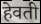
हेवती